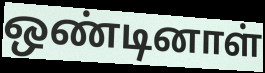
ஒண்டினாள்